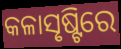
କଳାସୃଷ୍ଟିରେ